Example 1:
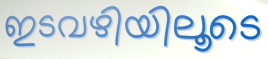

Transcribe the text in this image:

ഇടവഴിയിലൂടെ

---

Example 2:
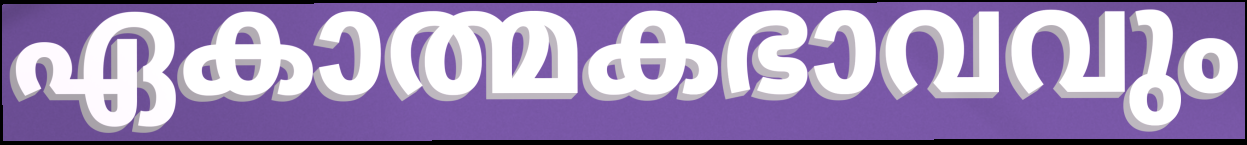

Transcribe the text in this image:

ഏകാത്മകഭാവവും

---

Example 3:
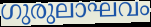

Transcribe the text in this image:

ഗുരുലാഘവം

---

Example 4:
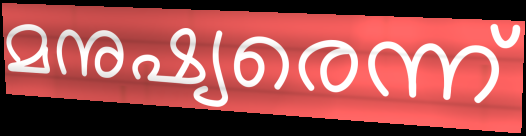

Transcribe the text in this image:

മനുഷ്യരെന്ന്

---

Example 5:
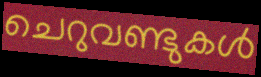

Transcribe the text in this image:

ചെറുവണ്ടുകൾ